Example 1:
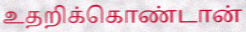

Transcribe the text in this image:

உதறிக்கொண்டான்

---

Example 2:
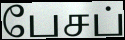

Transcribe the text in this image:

பேசப்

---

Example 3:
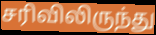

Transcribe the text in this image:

சரிவிலிருந்து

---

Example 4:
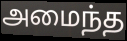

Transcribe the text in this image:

அமைந்த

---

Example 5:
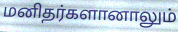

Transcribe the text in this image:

மனிதர்களானாலும்